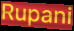
Rupani